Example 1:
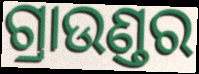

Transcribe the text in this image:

ଗ୍ରାଉଣ୍ଡର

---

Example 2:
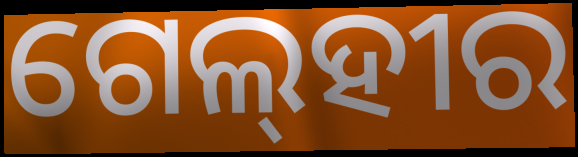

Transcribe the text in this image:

ଗେଲ୍‌ହୀର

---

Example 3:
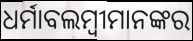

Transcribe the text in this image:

ଧର୍ମାବଲମ୍ବୀମାନଙ୍କର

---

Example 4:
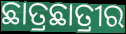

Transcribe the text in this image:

ଛାତ୍ରଛାତ୍ରୀର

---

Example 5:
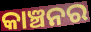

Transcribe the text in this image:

କାଞ୍ଚନର